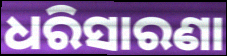
ଧରିସାରଣା